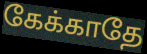
கேக்காதே